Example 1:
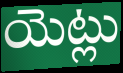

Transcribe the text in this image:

యెట్లు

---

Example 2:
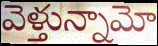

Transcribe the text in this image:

వెళ్తున్నామో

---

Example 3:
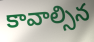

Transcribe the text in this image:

కావాల్సిన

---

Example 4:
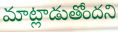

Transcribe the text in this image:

మాట్లాడుతోందని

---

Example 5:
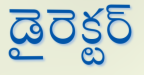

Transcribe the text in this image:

డైరెక్టర్